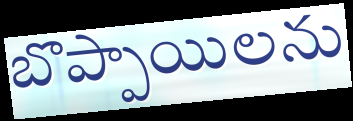
బొప్పాయిలను